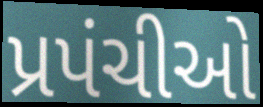
પ્રપંચીઓ